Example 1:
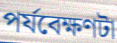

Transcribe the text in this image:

পর্যবেক্ষণটা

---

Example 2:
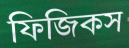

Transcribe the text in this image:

ফিজিকস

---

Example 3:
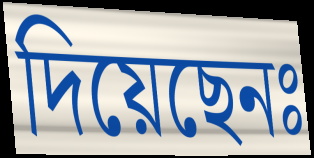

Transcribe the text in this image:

দিয়েছেনঃ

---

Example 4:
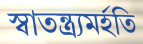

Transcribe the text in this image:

স্বাতন্ত্র্যমর্হতি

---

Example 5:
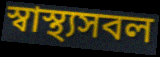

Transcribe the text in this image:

স্বাস্থ্যসবল